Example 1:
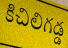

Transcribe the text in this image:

కిచిలిగడ్డ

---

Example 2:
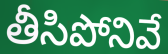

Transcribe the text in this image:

తీసిపోనివే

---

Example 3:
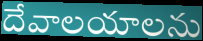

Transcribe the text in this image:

దేవాలయాలను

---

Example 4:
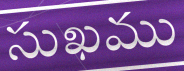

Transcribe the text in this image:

సుఖము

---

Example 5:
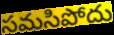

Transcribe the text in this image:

సమసిపోదు